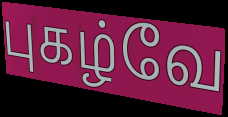
புகழ்வே